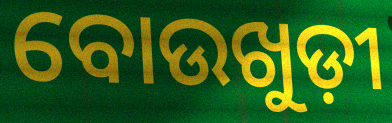
ବୋଉଖୁଡ଼ୀ